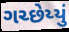
ગચ્છેય્યું